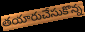
తయారుచేసుకొన్న